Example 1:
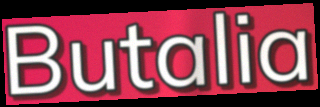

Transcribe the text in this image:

Butalia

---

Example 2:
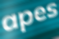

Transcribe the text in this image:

apes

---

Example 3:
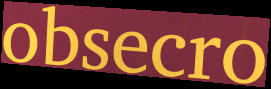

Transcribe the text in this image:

obsecro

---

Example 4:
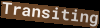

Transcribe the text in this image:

Transiting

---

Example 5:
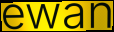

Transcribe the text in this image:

ewan